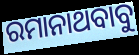
ରମାନାଥବାବୁ